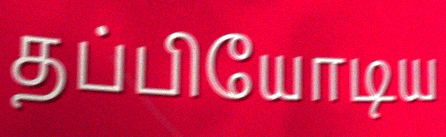
தப்பியோடிய